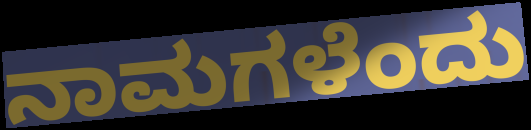
ನಾಮಗಳೆಂದು